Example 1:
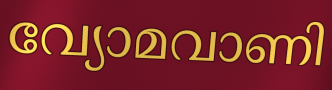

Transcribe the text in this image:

വ്യോമവാണി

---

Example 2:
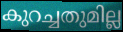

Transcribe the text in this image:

കുറച്ചതുമില്ല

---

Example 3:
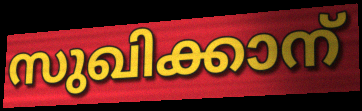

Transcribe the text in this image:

സുഖിക്കാന്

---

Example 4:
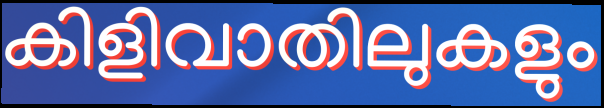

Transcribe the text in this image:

കിളിവാതിലുകളും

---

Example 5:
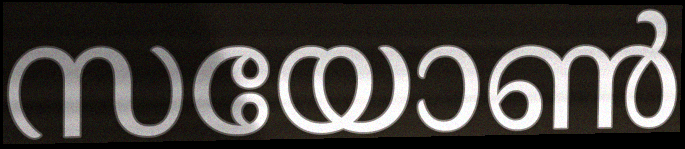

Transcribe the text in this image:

സയോൺ